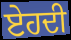
ਏਹਦੀ